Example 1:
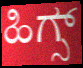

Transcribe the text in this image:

ಹಿಗ್ಸ್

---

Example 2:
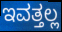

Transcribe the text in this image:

ಇವತ್ತಲ್ಲ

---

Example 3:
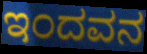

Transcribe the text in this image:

ಇಂದವನ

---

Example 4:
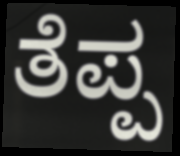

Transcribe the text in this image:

ತೆಪ್ಪ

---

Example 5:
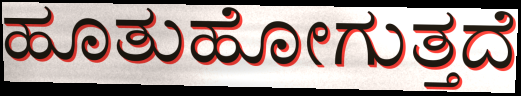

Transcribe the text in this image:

ಹೂತುಹೋಗುತ್ತದೆ